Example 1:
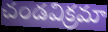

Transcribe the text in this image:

చండవిక్రమా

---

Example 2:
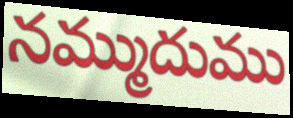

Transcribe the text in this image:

నమ్ముదుము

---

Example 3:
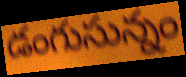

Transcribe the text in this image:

డంగుసున్నం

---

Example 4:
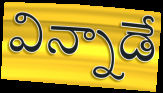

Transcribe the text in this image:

విన్నాడే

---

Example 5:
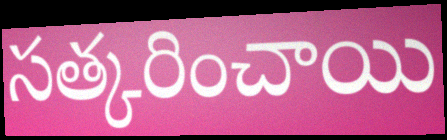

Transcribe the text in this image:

సత్కరించాయి